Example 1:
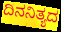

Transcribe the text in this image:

ದಿನನಿತ್ಯದ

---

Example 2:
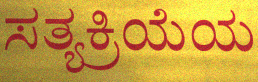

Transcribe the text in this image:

ಸತ್ಯಕ್ರಿಯೆಯ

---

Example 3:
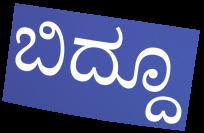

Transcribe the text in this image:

ಬಿದ್ದೂ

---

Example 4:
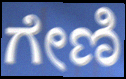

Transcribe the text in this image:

ಗೇಣಿ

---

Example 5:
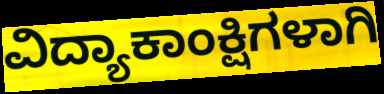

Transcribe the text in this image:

ವಿದ್ಯಾಕಾಂಕ್ಷಿಗಳಾಗಿ